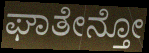
ಘಾತೇನ್ತೋ